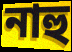
নাহু